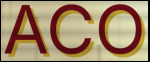
ACO